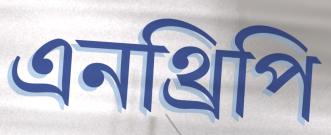
এনথ্রিপি